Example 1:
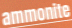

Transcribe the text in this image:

ammonite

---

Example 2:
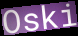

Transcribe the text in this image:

Oski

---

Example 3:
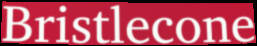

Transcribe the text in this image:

Bristlecone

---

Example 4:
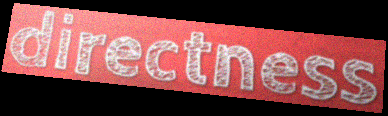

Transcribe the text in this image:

directness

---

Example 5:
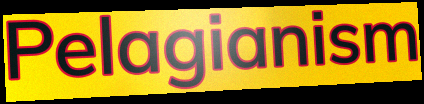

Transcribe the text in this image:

Pelagianism